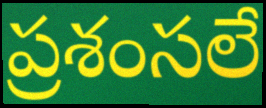
ప్రశంసలే